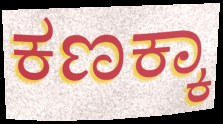
ಕಣಕ್ಕಾ